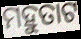
ମହୁତାଟ